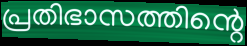
പ്രതിഭാസത്തിന്റെ